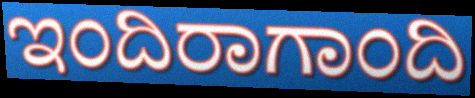
ಇಂದಿರಾಗಾಂದಿ